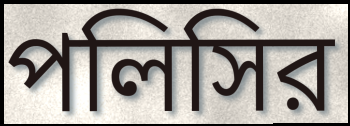
পলিসির